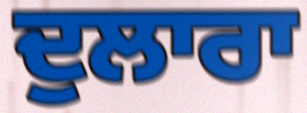
ਦੁਲਾਰਾ